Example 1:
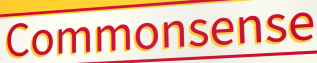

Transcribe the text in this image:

Commonsense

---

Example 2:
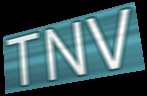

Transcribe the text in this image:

TNV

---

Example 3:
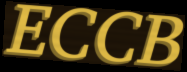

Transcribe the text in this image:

ECCB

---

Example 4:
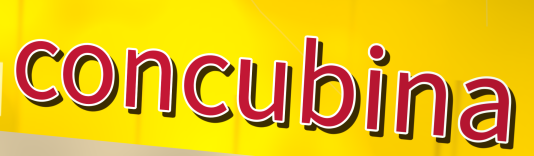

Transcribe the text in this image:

concubina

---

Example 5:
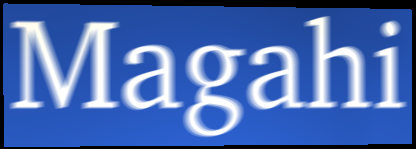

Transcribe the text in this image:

Magahi